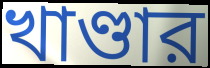
খাণ্ডার